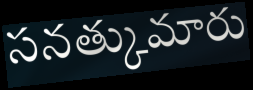
సనత్కుమారు